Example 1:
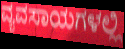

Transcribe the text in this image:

ವ್ಯವಸಾಯಗಳಲ್ಲಿ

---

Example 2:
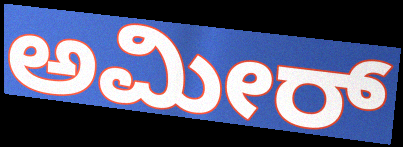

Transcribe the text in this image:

ಅಮೀರ್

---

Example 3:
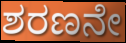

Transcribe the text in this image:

ಶರಣನೇ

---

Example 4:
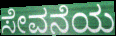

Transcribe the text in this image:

ಸೇವನೆಯ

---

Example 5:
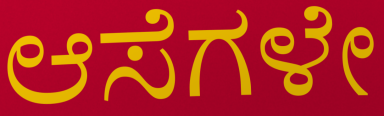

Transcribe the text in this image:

ಆಸೆಗಳೇ